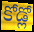
కోడ్లో